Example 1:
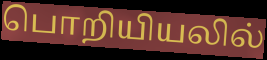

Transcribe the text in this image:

பொறியியலில்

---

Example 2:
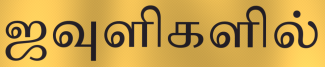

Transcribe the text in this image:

ஜவுளிகளில்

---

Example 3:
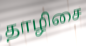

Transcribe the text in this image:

தாழிசை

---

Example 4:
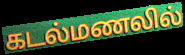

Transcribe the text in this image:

கடல்மணலில்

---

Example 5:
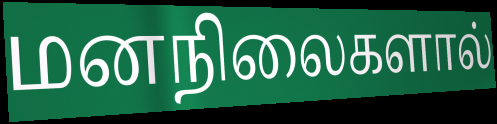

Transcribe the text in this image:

மனநிலைகளால்